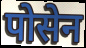
पोसेन